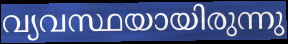
വ്യവസ്ഥയായിരുന്നു